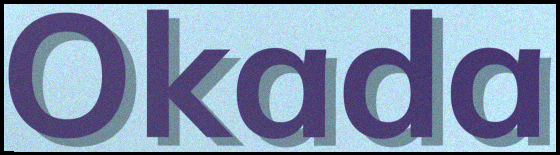
Okada